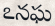
ఽనఘ